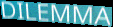
DILEMMA